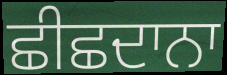
ਛੀਛਦਾਨਾ